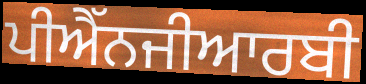
ਪੀਐੱਨਜੀਆਰਬੀ